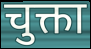
चुक्ता